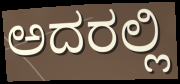
ಅದರಲ್ಲಿ